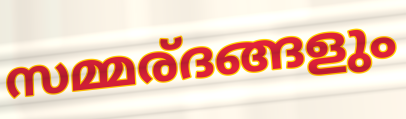
സമ്മര്ദങ്ങളും